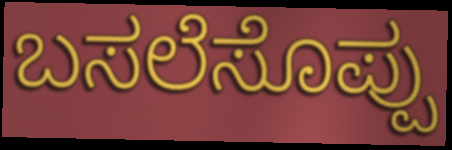
ಬಸಲೆಸೊಪ್ಪು